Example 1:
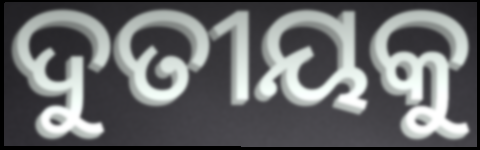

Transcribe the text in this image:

ଦୁତୀୟକୁ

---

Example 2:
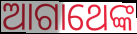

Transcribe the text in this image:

ଆଗାଥେଙ୍କ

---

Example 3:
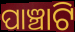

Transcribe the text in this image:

ପାଞ୍ଚାଟି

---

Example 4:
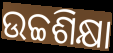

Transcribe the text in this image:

ଉଚ୍ଚଶିକ୍ଷା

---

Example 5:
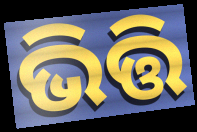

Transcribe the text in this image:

ଭିତ୍ତି